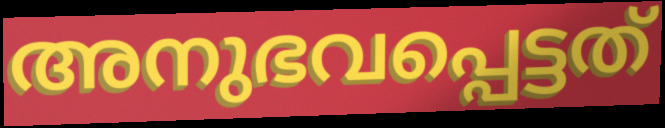
അനുഭവപ്പെട്ടത്